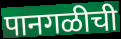
पानगळीची